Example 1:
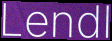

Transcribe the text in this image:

Lendl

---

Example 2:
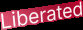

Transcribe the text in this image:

Liberated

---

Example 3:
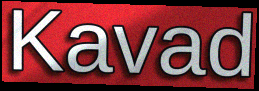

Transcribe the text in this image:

Kavad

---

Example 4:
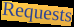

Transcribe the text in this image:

Requests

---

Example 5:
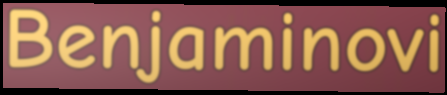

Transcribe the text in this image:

Benjaminovi